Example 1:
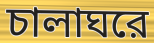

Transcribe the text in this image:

চালাঘরে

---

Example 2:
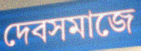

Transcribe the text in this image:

দেবসমাজে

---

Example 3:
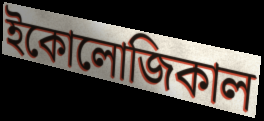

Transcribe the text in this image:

ইকোলোজিকাল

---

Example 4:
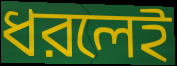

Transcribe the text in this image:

ধরলেই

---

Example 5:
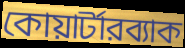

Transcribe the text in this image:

কোয়ার্টারব্যাক